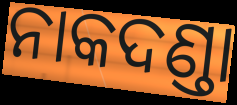
ନାକଦଣ୍ଡା